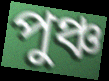
পুঞ্চ